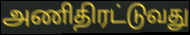
அணிதிரட்டுவது